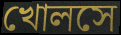
খোলসে